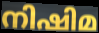
നിഷിമ